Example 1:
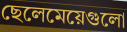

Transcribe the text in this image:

ছেলেমেয়েগুলো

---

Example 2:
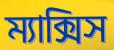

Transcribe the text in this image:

ম্যাক্সিস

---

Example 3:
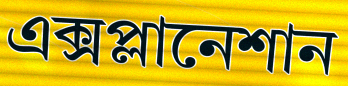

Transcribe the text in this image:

এক্সপ্লানেশান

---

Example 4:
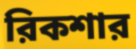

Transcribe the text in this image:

রিকশার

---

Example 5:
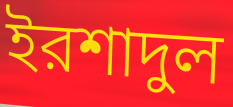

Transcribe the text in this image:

ইরশাদুল